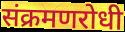
संक्रमणरोधी